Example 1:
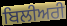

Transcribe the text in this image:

ਬਿਲੀਅਰੀ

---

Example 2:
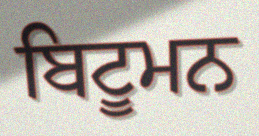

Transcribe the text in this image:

ਬਿਟੂਮਨ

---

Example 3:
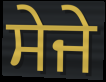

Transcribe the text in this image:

ਸੇਜੇ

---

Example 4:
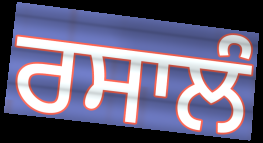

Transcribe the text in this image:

ਰਸਾਲੰ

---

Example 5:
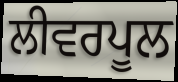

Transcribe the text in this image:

ਲੀਵਰਪੂਲ